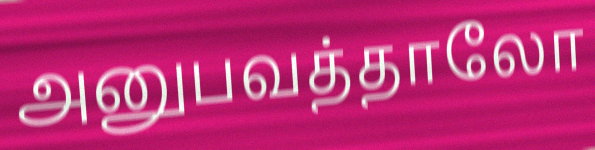
அனுபவத்தாலோ